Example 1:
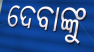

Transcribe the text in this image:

ଦେବାଙ୍କୁ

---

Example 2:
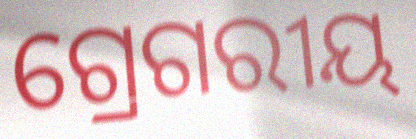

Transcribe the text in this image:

ଗ୍ରେଗରୀୟ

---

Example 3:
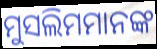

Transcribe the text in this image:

ମୁସଲିମମାନଙ୍କ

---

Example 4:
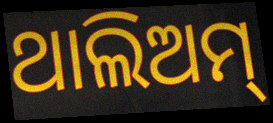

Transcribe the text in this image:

ଥାଲିଅମ୍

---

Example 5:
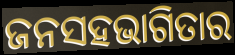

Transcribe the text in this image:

ଜନସହଭାଗିତାର